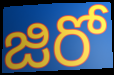
జిరో